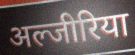
अल्जीरिया